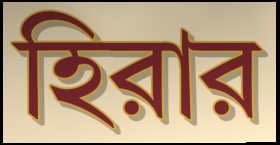
হিরার